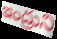
ఇంద్రుని